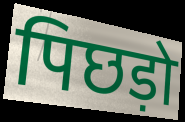
पिछड़ो